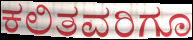
ಕಲಿತವರಿಗೂ